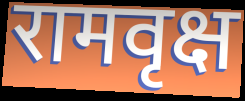
रामवृक्ष